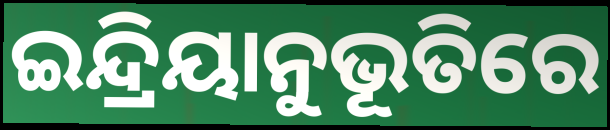
ଇନ୍ଦ୍ରିୟାନୁଭୂତିରେ